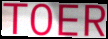
TOER